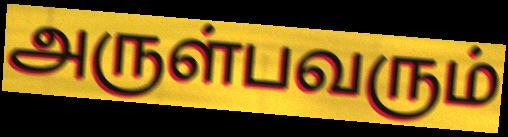
அருள்பவரும்